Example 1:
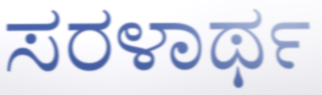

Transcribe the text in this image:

ಸರಳಾರ್ಥ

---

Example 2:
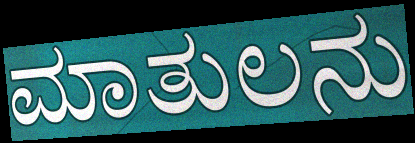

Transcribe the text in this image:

ಮಾತುಲನು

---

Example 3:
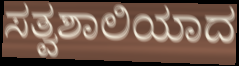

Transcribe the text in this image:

ಸತ್ವಶಾಲಿಯಾದ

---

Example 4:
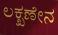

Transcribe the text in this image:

ಲಕ್ಖಣೇನ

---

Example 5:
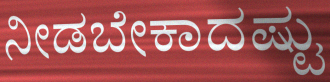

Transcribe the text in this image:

ನೀಡಬೇಕಾದಷ್ಟು